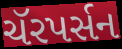
ચૅરપર્સન